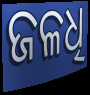
ଜଳଧି